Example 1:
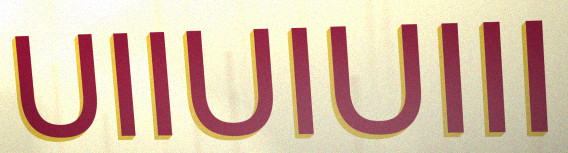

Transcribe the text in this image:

UIIUIUIII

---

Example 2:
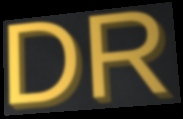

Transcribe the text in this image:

DR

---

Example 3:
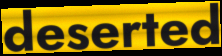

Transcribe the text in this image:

deserted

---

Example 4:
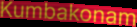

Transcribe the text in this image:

Kumbakonam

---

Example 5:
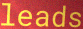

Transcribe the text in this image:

leads